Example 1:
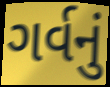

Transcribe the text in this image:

ગર્વનું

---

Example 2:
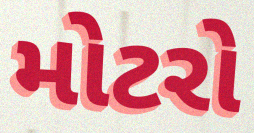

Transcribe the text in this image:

મોટરો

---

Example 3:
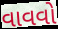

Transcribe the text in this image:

વાવવો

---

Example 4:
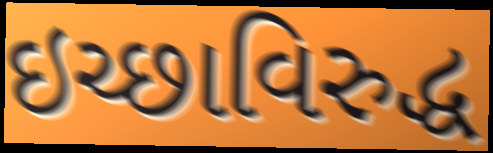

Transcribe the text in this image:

ઇચ્છાવિરુદ્ધ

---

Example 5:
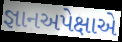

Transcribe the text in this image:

જ્ઞાનઅપેક્ષાએ